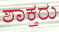
ಶಾಕ್ತರು